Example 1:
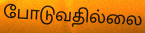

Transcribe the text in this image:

போடுவதில்லை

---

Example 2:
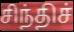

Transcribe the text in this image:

சிந்திச்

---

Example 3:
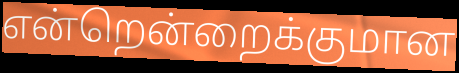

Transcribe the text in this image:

என்றென்றைக்குமான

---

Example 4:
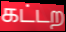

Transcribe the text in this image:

கட்டற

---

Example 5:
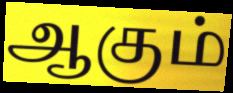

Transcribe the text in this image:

ஆகும்